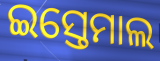
ଇସ୍ତେମାଲ